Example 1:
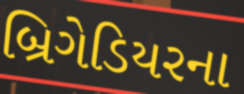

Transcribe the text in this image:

બ્રિગેડિયરના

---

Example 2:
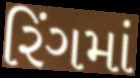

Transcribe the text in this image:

રિંગમાં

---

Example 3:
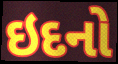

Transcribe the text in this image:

ઇદનો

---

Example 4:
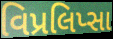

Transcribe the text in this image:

વિપ્રલિપ્સા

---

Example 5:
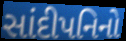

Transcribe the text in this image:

સાંદીપનિનો